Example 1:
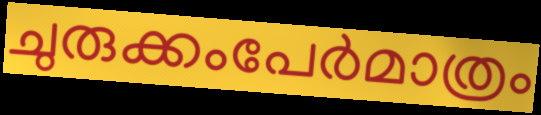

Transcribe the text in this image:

ചുരുക്കംപേർമാത്രം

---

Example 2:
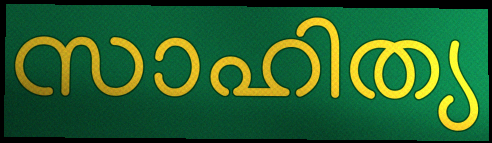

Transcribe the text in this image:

സാഹിത്യ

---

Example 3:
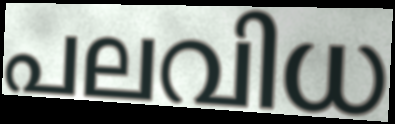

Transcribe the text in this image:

പലവിധ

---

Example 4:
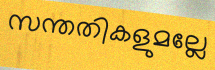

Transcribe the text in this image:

സന്തതികളുമല്ലേ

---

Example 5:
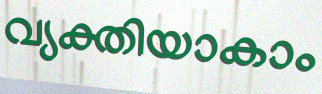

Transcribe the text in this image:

വ്യക്തിയാകാം